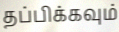
தப்பிக்கவும்